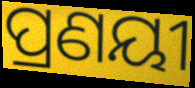
ପ୍ରଣୟୀ